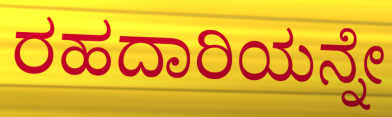
ರಹದಾರಿಯನ್ನೇ